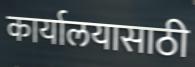
कार्यालयासाठी